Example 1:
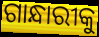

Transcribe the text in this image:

ଗାନ୍ଧାରୀକୁ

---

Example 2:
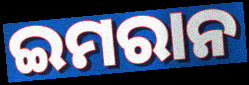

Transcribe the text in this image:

ଇମରାନ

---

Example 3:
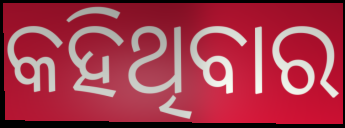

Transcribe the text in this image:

କହିଥିବାର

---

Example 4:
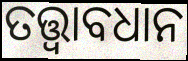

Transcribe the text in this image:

ତତ୍ତ୍ବାବଧାନ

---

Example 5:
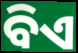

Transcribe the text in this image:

ବିଏ